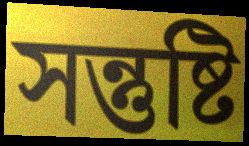
সন্তুষ্টি